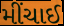
મીંચાઈ